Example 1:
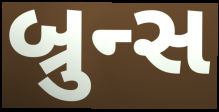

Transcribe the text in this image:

બ્રુન્સ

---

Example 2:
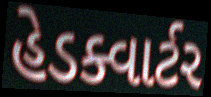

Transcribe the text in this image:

હેડક્વાર્ટર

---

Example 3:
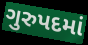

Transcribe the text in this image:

ગુરુપદમાં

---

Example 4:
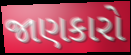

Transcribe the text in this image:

જાણકારો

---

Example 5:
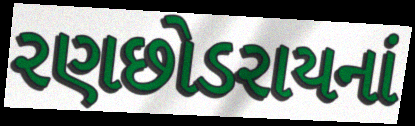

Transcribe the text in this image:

રણછોડરાયનાં